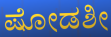
ಷೋಡಶೀ